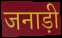
जनाड़ी